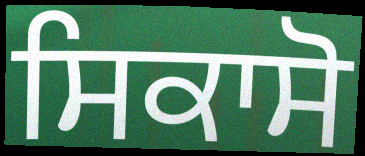
ਸਿਕਾਸੋ